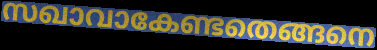
സഖാവാകേണ്ടതെങ്ങനെ